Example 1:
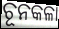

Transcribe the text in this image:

ଚୂନକଳା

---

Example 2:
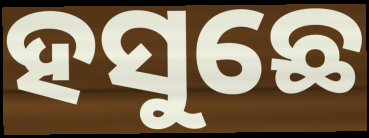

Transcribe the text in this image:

ହସୁଛେ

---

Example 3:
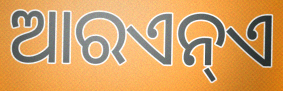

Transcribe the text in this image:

ଆରଏନ୍ଏ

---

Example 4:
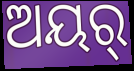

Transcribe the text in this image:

ଅୟର୍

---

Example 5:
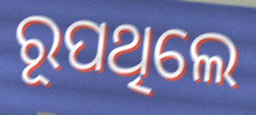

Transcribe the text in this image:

ରୂପଥିଲେ